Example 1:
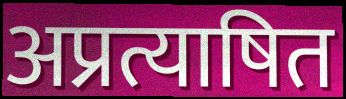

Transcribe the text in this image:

अप्रत्याषित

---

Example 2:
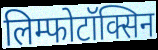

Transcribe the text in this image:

लिम्फोटॉक्सिन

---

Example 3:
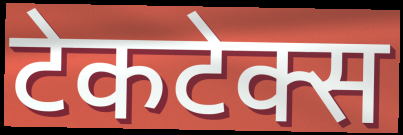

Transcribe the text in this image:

टेकटेक्स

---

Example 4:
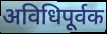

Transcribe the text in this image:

अविधिपूर्वक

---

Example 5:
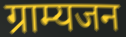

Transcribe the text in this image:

ग्राम्यजन